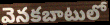
వెనకబాటులో